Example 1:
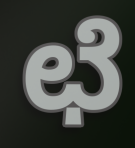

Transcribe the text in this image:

ಛೆ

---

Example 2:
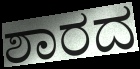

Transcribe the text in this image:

ಶಾರದ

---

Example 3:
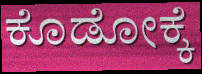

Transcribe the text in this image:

ಕೊಡೋಕ್ಕೆ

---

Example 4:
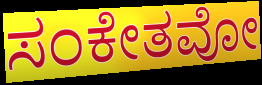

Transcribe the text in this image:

ಸಂಕೇತವೋ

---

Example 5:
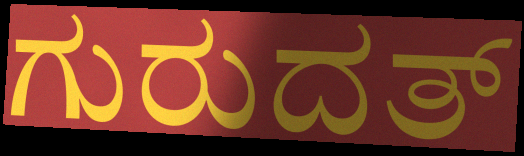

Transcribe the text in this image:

ಗುರುದತ್